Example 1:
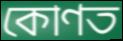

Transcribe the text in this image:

কোণত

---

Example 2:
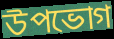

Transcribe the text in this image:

উপভোগ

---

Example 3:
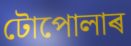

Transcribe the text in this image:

টোপোলাৰ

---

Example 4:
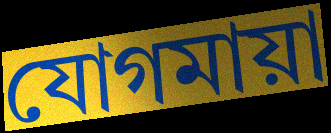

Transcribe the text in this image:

যোগমায়া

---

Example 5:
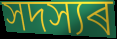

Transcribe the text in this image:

সদস্যৰ